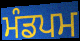
ਮੰਡਪਮ